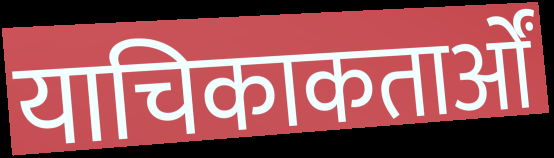
याचिकाकतार्ओं